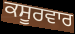
ਕਸੂਰਵਾਰ